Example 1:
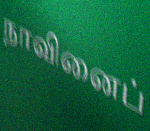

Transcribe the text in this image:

நாவினைப்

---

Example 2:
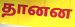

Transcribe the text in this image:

தானன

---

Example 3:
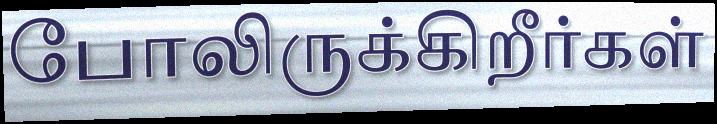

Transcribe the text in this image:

போலிருக்கிறீர்கள்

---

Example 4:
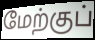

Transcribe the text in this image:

மேற்குப்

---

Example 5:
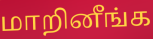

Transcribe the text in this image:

மாறினீங்க